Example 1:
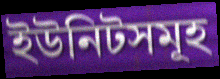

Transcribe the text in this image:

ইউনিটসমূহ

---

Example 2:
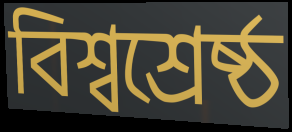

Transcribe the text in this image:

বিশ্বশ্ৰেষ্ঠ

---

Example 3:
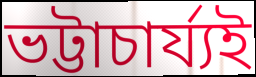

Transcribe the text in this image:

ভট্টাচাৰ্য্যই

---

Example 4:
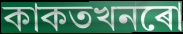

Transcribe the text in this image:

কাকতখনৰো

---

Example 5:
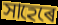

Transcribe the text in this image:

সাহেৰে